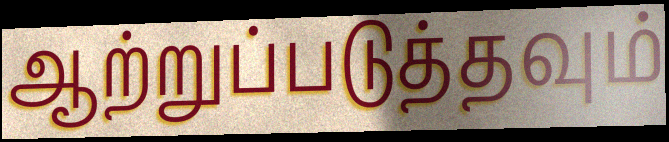
ஆற்றுப்படுத்தவும்